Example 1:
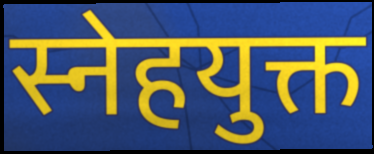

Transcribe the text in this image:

स्नेहयुक्त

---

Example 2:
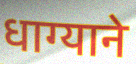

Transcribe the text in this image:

धाग्याने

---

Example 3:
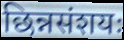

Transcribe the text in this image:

छिन्नसंशयः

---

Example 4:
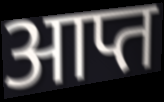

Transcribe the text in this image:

आप्त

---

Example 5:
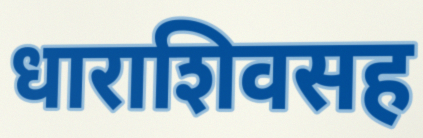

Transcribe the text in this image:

धाराशिवसह